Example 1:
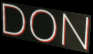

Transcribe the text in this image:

DON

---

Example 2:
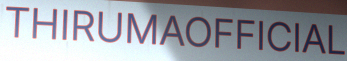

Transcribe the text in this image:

THIRUMAOFFICIAL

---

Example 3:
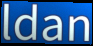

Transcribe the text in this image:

ldan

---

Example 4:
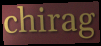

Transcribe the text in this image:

chirag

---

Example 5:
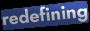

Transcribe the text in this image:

redefining